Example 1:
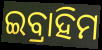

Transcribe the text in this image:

ଇବ୍ରାହିମ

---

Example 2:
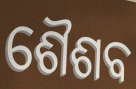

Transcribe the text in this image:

ଶୈଶବ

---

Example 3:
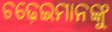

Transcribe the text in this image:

ଚଢ଼େଇମାନଙ୍କୁ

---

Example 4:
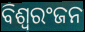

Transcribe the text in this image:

ବିଶ୍ୱରଂଜନ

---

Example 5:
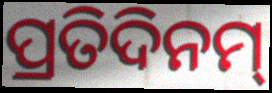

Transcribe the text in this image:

ପ୍ରତିଦିନମ୍